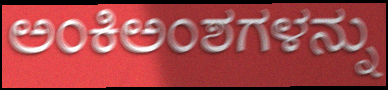
ಅಂಕಿಅಂಶಗಳನ್ನು